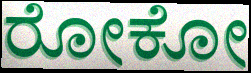
ರೋಕೋ